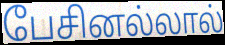
பேசினல்லால்